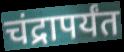
चंद्रापर्यंत